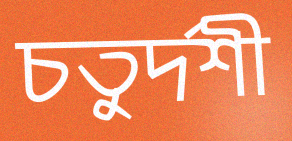
চতুৰ্দশী